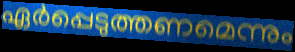
ഏർപ്പെടുത്തണമെന്നും